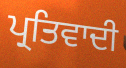
ਪ੍ਰਤਿਵਾਦੀ